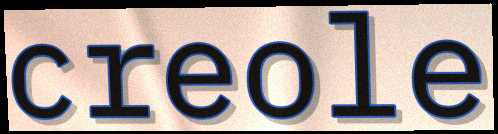
creole